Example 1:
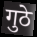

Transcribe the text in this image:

गुठे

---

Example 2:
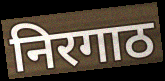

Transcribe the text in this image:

निरगाठ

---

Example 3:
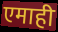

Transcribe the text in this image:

एमाही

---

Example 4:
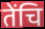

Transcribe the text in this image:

तेंचि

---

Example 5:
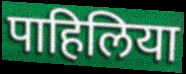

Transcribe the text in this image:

पाहिलिया